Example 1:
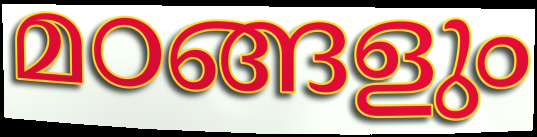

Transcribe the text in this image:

മഠങ്ങളും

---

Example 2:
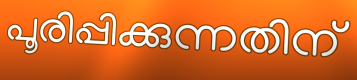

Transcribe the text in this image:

പൂരിപ്പിക്കുന്നതിന്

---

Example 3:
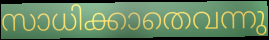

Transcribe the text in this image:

സാധിക്കാതെവന്നു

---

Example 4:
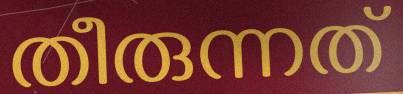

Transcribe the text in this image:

തീരുന്നത്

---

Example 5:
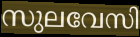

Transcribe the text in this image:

സുലവേസി